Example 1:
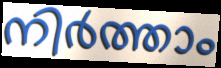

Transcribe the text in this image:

നിർത്താം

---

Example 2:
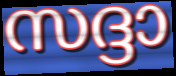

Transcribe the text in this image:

സദ്ദാ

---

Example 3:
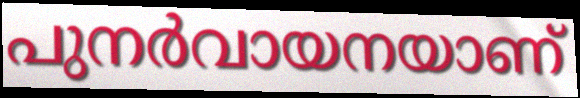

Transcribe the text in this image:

പുനർവായനയാണ്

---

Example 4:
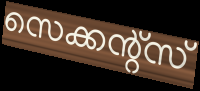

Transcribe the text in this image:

സെക്കന്റ്സ്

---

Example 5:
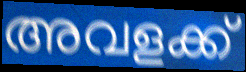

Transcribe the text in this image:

അവളക്ക്